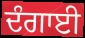
ਦੰਗਾਈ